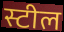
स्‍टील